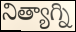
నిత్యాగ్ని